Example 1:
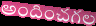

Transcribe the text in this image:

అందించగల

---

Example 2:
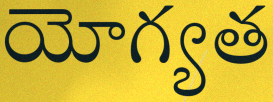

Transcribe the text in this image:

యోగ్యత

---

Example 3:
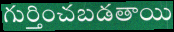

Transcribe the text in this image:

గుర్తించబడతాయి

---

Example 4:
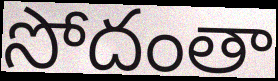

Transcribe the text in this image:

సోదంతా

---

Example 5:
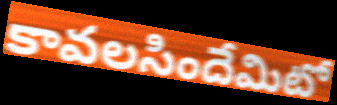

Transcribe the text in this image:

కావలసిందేమిటో